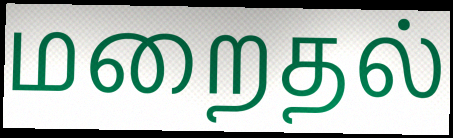
மறைதல்